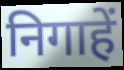
निगाहें